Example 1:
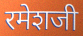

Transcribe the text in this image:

रमेशजी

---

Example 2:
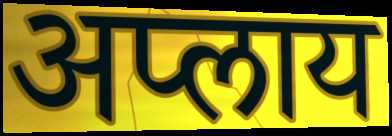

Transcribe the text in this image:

अप्लाय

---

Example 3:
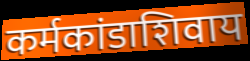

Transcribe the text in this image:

कर्मकांडाशिवाय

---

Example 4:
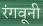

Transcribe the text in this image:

रंगवूनी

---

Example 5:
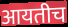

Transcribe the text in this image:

आयतीच